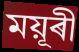
ময়ূৰী